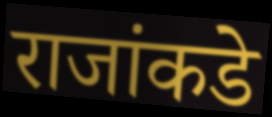
राजांकडे